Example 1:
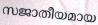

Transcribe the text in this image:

സജാതീയമായ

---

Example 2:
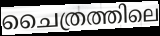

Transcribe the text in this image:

ചൈത്രത്തിലെ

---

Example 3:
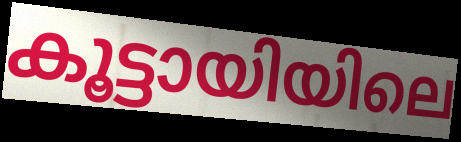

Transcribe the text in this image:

കൂട്ടായിയിലെ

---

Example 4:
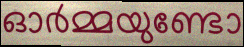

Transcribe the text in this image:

ഓർമ്മയുണ്ടോ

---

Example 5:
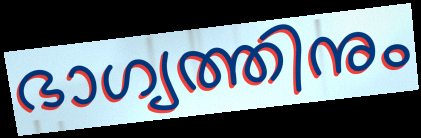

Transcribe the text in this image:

ഭാഗ്യത്തിനും